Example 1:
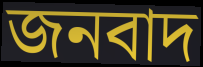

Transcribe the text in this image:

জনবাদ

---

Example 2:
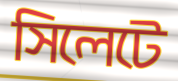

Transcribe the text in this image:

সিলেটে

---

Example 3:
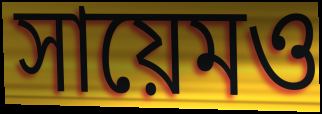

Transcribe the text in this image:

সায়েমও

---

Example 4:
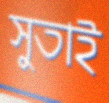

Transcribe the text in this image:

সুতাই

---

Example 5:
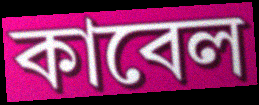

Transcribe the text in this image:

কাবেল